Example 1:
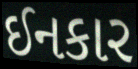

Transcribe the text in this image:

ઈનકાર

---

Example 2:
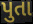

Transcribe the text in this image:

પુતા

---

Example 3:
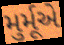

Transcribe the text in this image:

મુર્મૂએ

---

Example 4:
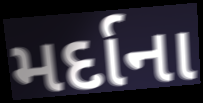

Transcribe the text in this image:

મર્દાના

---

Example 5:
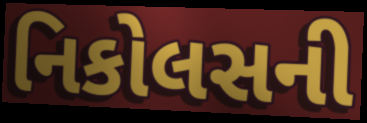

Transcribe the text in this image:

નિકોલસની